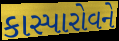
કાસ્પારોવને